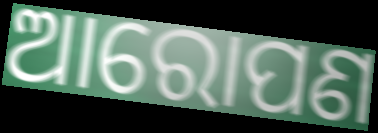
ଆରୋପଣ